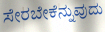
ಸೇರಬೇಕೆನ್ನುವುದು